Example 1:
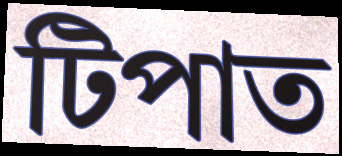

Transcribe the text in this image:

টিপাত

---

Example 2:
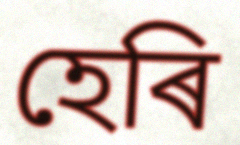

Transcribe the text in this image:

হেৰি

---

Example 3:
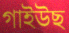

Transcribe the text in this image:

গাইউছ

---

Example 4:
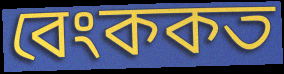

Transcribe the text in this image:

বেংককত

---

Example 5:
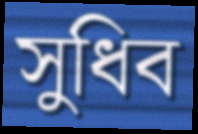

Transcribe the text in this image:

সুধিব